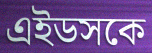
এইডসকে